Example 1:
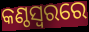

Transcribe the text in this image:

କଣ୍ଠସ୍ୱରରେ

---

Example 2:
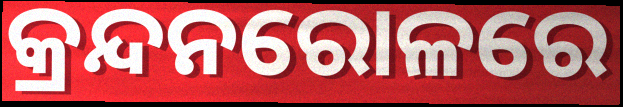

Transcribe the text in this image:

କ୍ରନ୍ଦନରୋଳରେ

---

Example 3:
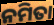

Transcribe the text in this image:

ନମିତା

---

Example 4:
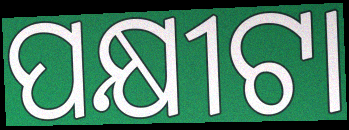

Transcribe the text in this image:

ପକ୍ଷୀଟା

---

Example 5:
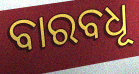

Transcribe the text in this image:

ବାରବଧୂ